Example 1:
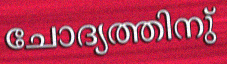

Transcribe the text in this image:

ചോദ്യത്തിനു്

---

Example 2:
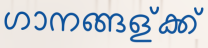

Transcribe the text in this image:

ഗാനങ്ങള്ക്ക്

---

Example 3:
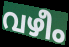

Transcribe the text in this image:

വഴീം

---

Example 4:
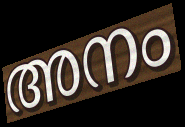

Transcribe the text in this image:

അനം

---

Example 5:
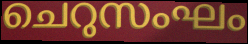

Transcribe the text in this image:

ചെറുസംഘം